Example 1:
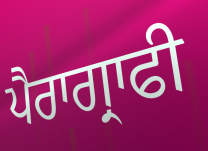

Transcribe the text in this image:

ਪੈਰਾਗ੍ਰਾਫੀ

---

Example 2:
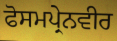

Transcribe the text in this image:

ਫੋਸਮਪ੍ਰੇਨਵੀਰ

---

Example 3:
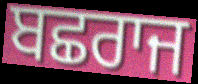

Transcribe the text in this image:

ਬਛਰਾਜ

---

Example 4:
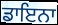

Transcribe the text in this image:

ਡਾਇਨਾ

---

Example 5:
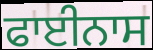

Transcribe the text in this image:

ਫਾਈਨਾਸ